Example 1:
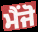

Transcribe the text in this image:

ਮੈਂਜੋ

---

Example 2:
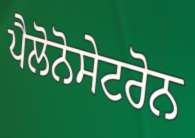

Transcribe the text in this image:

ਪੈਲੋਨੋਸੇਟਰੋਨ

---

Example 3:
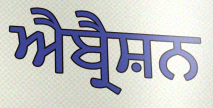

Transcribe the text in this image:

ਐਬ੍ਰੈਸ਼ਨ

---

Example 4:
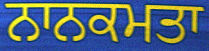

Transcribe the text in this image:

ਨਾਨਕਮਤਾ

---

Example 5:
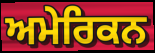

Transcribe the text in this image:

ਅਮੇਰਿਕਨ